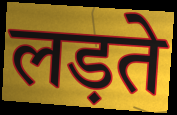
लड़ते